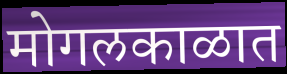
मोगलकाळात